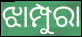
ଝାମ୍ପୁରା